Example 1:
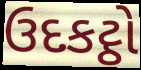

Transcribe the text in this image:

ઉદકટ્ઠો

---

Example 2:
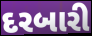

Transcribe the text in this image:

દરબારી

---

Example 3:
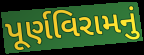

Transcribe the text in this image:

પૂર્ણવિરામનું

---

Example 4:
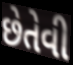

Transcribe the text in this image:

છેતેવી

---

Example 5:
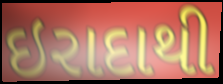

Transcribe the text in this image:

ઇરાદાથી